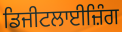
ਡਿਜੀਟਲਾਈਜ਼ਿੰਗ